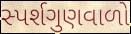
સ્પર્શગુણવાળો